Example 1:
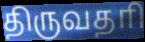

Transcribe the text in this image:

திருவதரி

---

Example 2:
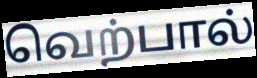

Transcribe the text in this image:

வெற்பால்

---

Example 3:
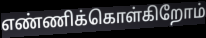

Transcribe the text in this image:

எண்ணிக்கொள்கிறோம்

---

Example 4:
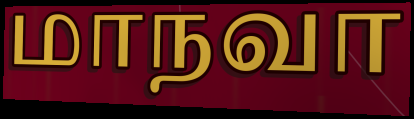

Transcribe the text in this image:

மாநவா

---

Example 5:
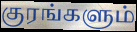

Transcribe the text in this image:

குரங்களும்